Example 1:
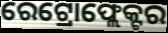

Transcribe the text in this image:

ରେଟ୍ରୋଫ୍ଲେକ୍ଟର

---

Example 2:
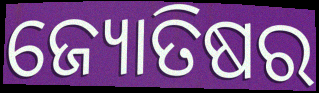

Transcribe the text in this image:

ଜ୍ୟୋତିଷର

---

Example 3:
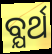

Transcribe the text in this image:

ବ୍ଯର୍ଥ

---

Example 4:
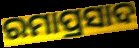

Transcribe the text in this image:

ରମାପ୍ରସାଦ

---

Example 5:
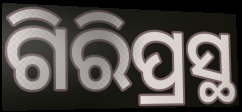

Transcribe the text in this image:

ଗିରିପ୍ରସ୍ଥ